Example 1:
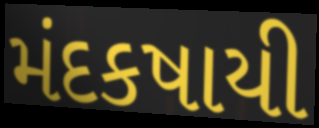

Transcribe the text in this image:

મંદકષાયી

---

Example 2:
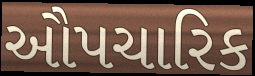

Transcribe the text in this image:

ઔપચારિક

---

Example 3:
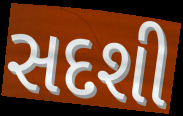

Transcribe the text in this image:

સદશી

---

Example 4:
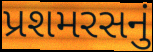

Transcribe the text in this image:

પ્રશમરસનું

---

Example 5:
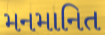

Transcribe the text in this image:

મનમાનિત